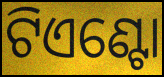
ଟିଏଣ୍ଟୋ